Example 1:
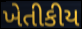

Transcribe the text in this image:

ખેતીકીય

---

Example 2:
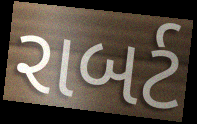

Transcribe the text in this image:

રાબર્ટ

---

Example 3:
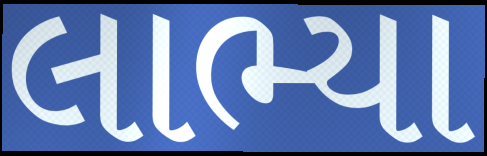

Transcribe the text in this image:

લાભ્યા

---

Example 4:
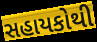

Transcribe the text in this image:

સહાયકોથી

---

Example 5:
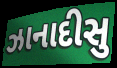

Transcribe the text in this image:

ઝાનાદીસુ